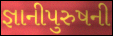
જ્ઞાનીપુરુષની